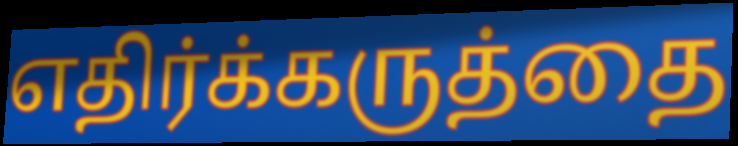
எதிர்க்கருத்தை